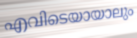
എവിടെയായാലും